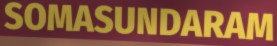
SOMASUNDARAM